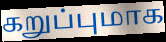
கறுப்புமாக